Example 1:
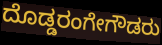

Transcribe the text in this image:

ದೊಡ್ಡರಂಗೇಗೌಡರು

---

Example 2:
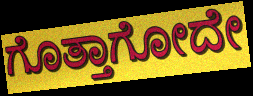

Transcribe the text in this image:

ಗೊತ್ತಾಗೋದೇ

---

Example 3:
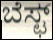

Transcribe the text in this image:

ಬೆಸ್ಟ್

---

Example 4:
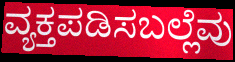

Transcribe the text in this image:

ವ್ಯಕ್ತಪಡಿಸಬಲ್ಲೆವು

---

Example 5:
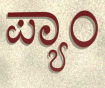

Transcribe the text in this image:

ಪ್ಯಾಂ